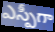
ఎస్పీగా